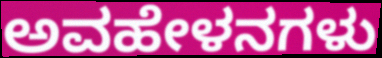
ಅವಹೇಳನಗಳು